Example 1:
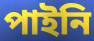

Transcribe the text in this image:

পাইনি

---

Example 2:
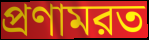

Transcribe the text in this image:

প্রণামরত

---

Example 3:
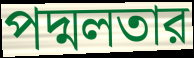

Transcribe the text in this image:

পদ্মলতার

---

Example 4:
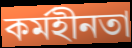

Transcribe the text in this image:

কর্মহীনতা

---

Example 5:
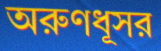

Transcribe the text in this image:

অরুণধূসর